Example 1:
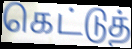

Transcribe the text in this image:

கெட்டுத்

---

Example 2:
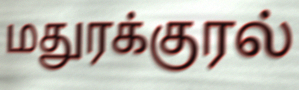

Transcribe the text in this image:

மதுரக்குரல்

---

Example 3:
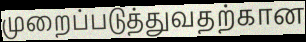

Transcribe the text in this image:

முறைப்படுத்துவதற்கான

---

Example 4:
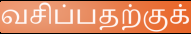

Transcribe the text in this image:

வசிப்பதற்குக்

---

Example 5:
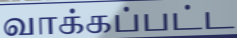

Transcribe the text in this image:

வாக்கப்பட்ட